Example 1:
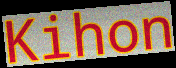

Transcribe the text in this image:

Kihon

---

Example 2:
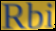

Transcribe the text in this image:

Rbi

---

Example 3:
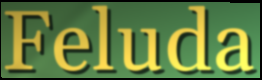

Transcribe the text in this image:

Feluda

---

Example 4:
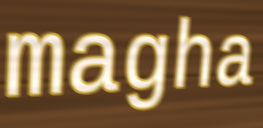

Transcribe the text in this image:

magha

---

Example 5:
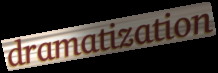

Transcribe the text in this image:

dramatization